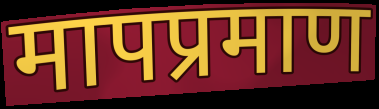
मापप्रमाण